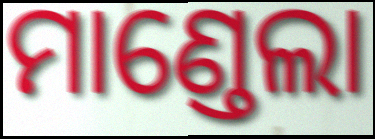
ମାଣ୍ଡେଲା